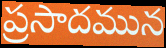
ప్రసాదమున